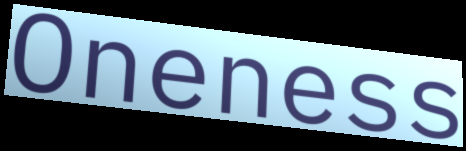
Oneness